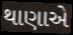
થાણાએ